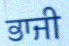
ਭਾਜੀ